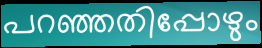
പറഞ്ഞതിപ്പോഴും